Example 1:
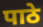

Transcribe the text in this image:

पाठे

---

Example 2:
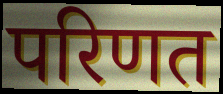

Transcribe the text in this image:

परिणत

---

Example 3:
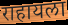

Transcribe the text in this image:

राहायला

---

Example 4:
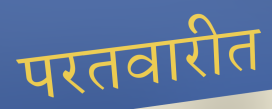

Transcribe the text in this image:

परतवारीत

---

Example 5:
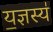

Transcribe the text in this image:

य॒ज्ञस्य॑